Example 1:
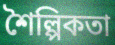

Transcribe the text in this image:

শৈল্পিকতা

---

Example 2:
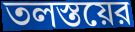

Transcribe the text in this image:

তলস্তয়ের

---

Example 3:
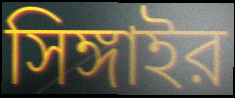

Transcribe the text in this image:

সিঙ্গাইর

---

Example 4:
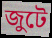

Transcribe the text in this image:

জুটে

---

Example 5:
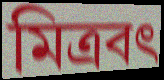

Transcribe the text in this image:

মিত্রবৎ